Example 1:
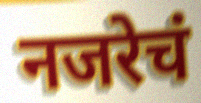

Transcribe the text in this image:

नजरेचं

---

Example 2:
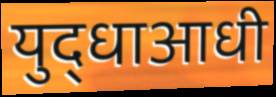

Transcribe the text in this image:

युद्धाआधी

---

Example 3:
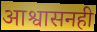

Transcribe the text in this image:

आश्वासनही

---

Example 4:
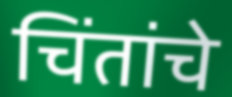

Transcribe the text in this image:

चिंतांचे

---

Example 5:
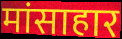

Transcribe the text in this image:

मांसाहार